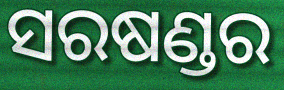
ସରଷଣ୍ଡର